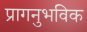
प्रागनुभविक